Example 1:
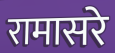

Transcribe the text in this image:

रामासरे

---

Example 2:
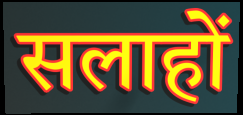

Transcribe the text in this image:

सलाहों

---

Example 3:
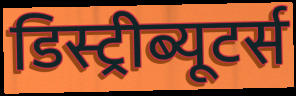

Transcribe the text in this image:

डिस्ट्रीब्यूटर्स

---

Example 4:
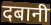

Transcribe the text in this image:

दबानी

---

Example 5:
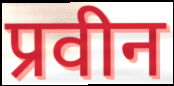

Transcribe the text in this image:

प्रवीन